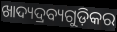
ଖାଦ୍ୟଦ୍ରବ୍ୟଗୁଡ଼ିକର